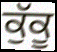
ਕੁੱਕੂ